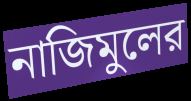
নাজিমুলের